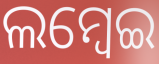
ଲମ୍ଵେଇ